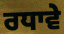
ਰਧਾਵੇ